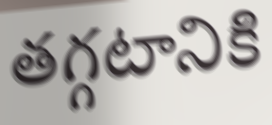
తగ్గటానికి